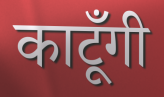
काटूँगी